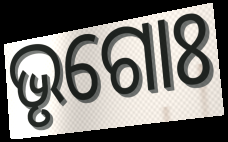
ଭୃଗୋଃ